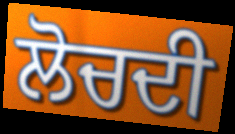
ਲੋਚਦੀ